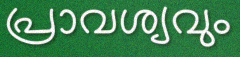
പ്രാവശ്യവും